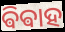
ଵିଵାହ